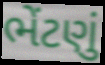
ભેંટણું